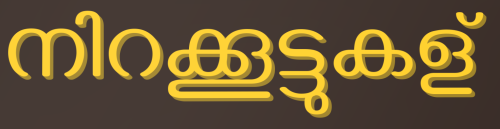
നിറക്കൂട്ടുകള്